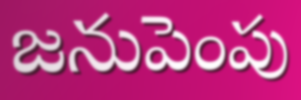
జనుపెంపు